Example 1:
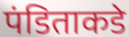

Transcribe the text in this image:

पंडिताकडे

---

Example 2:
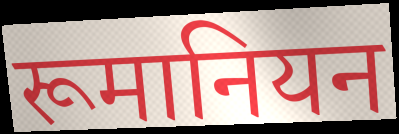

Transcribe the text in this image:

रूमानियन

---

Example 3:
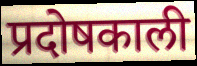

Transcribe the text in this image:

प्रदोषकाली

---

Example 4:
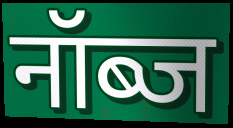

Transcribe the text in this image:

नॉब्ज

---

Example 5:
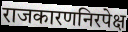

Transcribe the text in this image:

राजकारणनिरपेक्ष